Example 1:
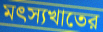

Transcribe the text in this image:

মৎস্যখাতের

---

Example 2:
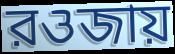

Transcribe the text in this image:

রওজায়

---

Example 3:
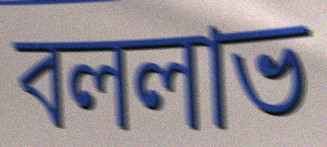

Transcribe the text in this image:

বললাভ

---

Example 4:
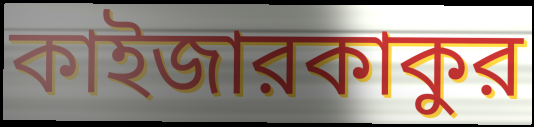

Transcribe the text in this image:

কাইজারকাকুর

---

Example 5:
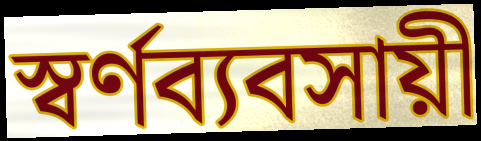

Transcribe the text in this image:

স্বর্ণব্যবসায়ী